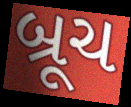
બ્રૂચ